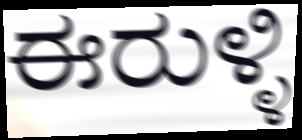
ಈರುಳ್ಳಿ